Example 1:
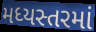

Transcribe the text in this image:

મધ્યસ્તરમાં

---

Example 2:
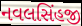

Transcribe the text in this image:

નવલસિંહજી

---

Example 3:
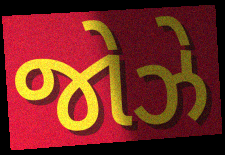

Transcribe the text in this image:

જોઝે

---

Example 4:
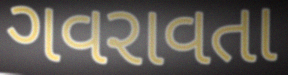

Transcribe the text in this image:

ગવરાવતા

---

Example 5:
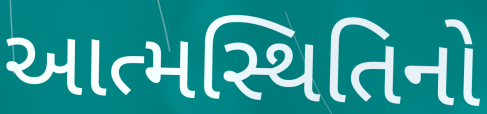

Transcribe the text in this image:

આત્મસ્થિતિનો